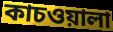
কাচওয়ালা